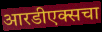
आरडीएक्सचा